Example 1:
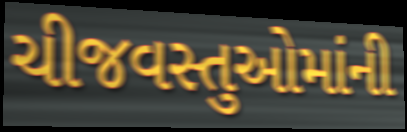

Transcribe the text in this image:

ચીજવસ્તુઓમાંની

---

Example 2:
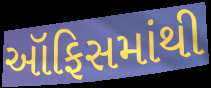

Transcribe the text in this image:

ઑફિસમાંથી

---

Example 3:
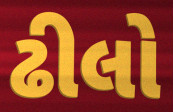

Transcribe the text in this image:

ઢીલો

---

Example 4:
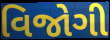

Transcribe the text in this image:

વિજોગી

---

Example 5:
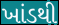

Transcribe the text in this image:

ખાંડથી